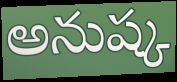
అనుష్క